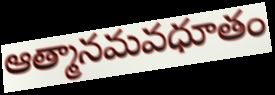
ఆత్మానమవధూతం